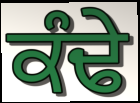
ਕੰਢੇ